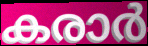
കരാർ